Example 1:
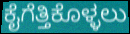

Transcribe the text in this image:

ಕೈಗೆತ್ತಿಕೊಳ್ಳಲು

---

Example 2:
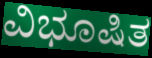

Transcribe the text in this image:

ವಿಭೂಷಿತ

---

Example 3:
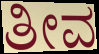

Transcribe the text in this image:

ತೀವ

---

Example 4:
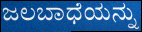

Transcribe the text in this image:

ಜಲಬಾಧೆಯನ್ನು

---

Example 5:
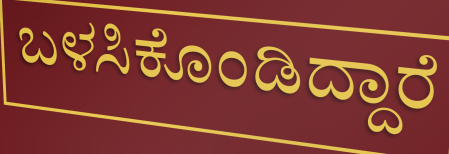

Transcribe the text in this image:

ಬಳಸಿಕೊಂಡಿದ್ದಾರೆ